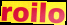
roilo